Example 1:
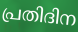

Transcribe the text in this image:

പ്രതിദിന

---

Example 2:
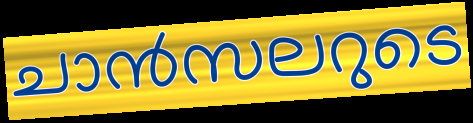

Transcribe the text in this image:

ചാൻസലറുടെ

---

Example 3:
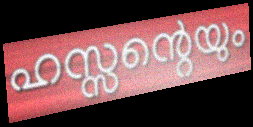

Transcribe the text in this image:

ഹസ്സന്റെയും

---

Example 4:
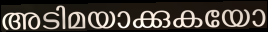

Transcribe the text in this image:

അടിമയാക്കുകയോ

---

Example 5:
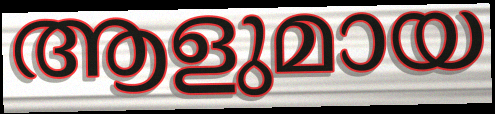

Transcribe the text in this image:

ആളുമായ